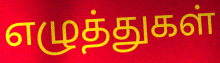
எழுத்துகள்